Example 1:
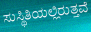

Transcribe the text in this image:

ಸುಸ್ಥಿತಿಯಲ್ಲಿರುತ್ತವೆ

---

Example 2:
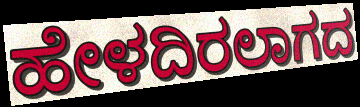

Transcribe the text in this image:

ಹೇಳದಿರಲಾಗದ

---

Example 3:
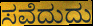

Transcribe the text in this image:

ಸವೆದುದು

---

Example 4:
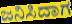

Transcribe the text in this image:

ಜನಿಸಿದಾಗ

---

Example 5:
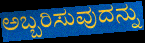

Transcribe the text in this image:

ಅಬ್ಬರಿಸುವುದನ್ನು